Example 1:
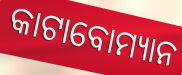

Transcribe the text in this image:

କାଟାବୋମ୍ୟାନ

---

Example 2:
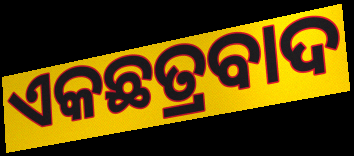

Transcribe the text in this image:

ଏକଛତ୍ରବାଦ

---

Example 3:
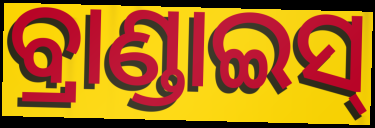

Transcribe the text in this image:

ବ୍ରାଣ୍ଡାଇସ୍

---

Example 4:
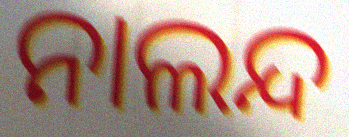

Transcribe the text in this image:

ନାଲନ୍ଦ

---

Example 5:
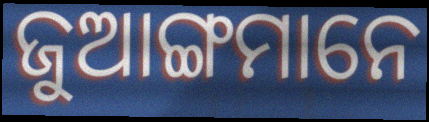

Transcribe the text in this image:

ଜୁଆଙ୍ଗମାନେ